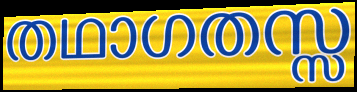
തഥാഗതസ്സ